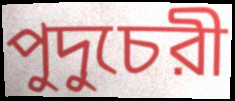
পুদুচেরী